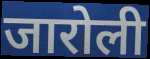
जारोली